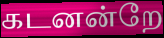
கடனன்றே